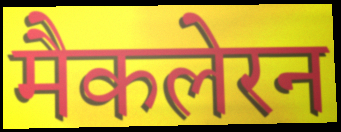
मैकलेरन